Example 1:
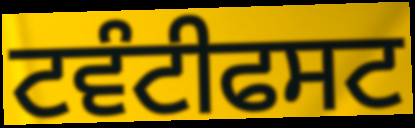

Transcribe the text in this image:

ਟਵੰਟੀਫਸਟ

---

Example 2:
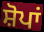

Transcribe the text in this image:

ਸ਼ੋਪਾਂ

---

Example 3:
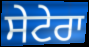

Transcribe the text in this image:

ਸੇਟੇਰਾ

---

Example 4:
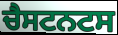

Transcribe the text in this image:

ਚੈਸਟਨਟਸ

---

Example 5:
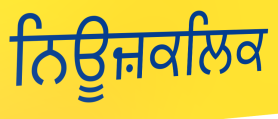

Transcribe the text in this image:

ਨਿਊਜ਼ਕਲਿਕ